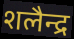
शलैन्द्र